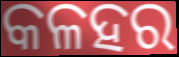
କଳହର